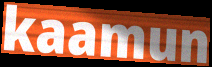
kaamun